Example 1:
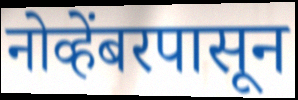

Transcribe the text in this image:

नोव्हेंबरपासून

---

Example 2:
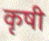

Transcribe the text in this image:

कृषी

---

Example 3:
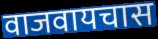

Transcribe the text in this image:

वाजवायचास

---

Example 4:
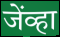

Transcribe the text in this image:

जेंव्हा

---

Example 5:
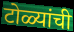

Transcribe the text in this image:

टोळ्यांची